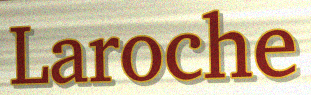
Laroche